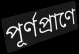
পূর্ণপ্রাণে